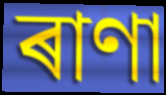
ৰাণা